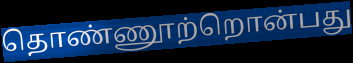
தொண்ணூற்றொன்பது